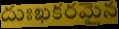
దుఃఖకరమైన